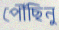
পৌঁছিনু